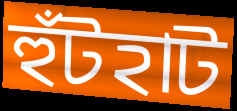
হুঁটহাট